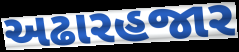
અઢારહજાર